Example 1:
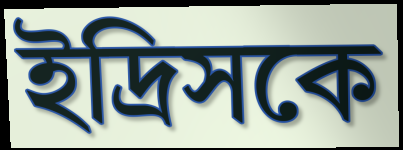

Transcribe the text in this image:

ইদ্রিসকে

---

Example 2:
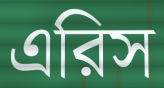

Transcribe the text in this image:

এরিস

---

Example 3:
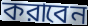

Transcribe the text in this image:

করাবেন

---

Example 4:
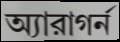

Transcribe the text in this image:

অ্যারাগর্ন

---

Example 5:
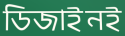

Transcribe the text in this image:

ডিজাইনই